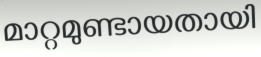
മാറ്റമുണ്ടായതായി